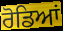
ਰੋਡਿਆਂ